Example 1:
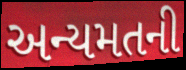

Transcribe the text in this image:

અન્યમતની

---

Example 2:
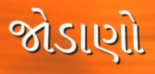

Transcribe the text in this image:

જોડાણો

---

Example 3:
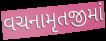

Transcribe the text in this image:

વચનામૃતજીમાં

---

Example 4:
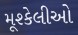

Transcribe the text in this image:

મૂશ્કેલીઓ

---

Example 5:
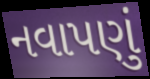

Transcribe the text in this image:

નવાપણું